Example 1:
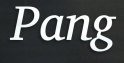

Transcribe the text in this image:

Pang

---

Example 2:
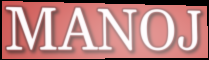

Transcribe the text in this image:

MANOJ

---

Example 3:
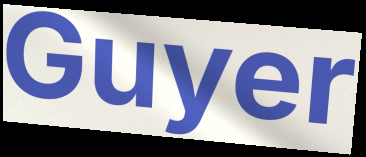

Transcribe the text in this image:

Guyer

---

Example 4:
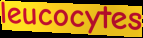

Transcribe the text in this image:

leucocytes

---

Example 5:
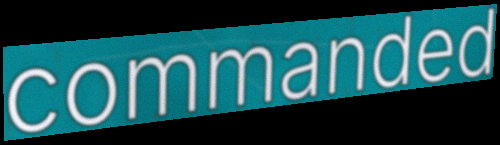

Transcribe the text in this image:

commanded